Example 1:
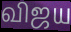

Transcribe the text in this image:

விஜய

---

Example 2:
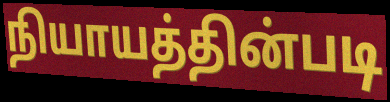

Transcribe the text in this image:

நியாயத்தின்படி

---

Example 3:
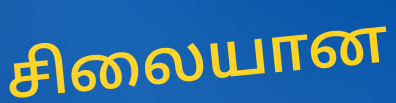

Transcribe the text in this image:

சிலையான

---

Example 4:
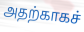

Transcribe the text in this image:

அதற்காகச்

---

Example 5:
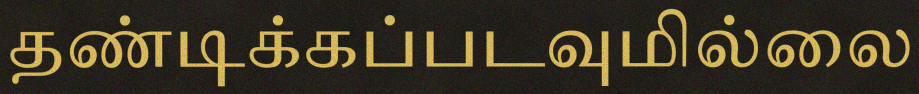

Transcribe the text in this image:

தண்டிக்கப்படவுமில்லை